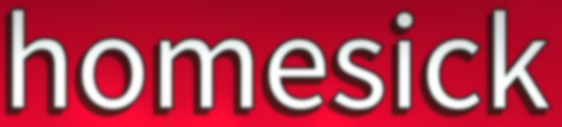
homesick